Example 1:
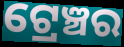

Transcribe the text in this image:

ଟ୍ରେଞ୍ଚର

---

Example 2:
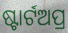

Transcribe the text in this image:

ଷ୍ଟାର୍ଟଅପ୍ର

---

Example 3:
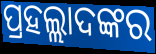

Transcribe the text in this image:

ପ୍ରହଲ୍ଲାଦଙ୍କର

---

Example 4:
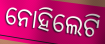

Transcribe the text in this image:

ନୋହିଲେଟି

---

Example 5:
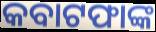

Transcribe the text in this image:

କବାଟଫାଙ୍କ